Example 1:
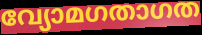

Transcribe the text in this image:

വ്യോമഗതാഗത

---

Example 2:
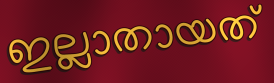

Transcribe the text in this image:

ഇല്ലാതായത്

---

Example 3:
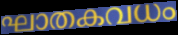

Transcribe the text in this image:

ഘാതകവധം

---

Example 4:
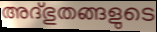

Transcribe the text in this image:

അദ്ഭുതങ്ങളുടെ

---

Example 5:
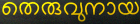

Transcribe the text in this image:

തെരുവുനായ